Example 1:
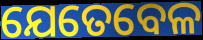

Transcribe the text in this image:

ଯେତେବେଳ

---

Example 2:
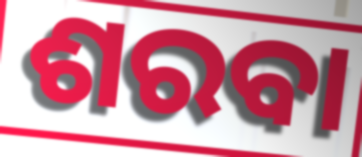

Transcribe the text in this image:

ଶରବା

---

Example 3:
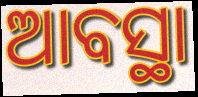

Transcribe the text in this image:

ଆବସ୍ଥା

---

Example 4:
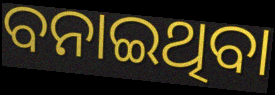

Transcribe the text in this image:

ବନାଇଥିବା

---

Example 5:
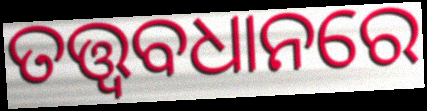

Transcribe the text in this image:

ତତ୍ତ୍ୱବଧାନରେ